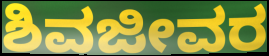
ಶಿವಜೀವರ